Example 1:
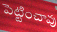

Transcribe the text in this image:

పెట్టించావు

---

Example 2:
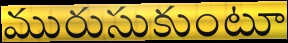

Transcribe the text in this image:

మురుసుకుంటూ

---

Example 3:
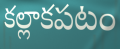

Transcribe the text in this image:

కల్లాకపటం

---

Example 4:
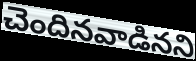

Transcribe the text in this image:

చెందినవాడినని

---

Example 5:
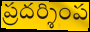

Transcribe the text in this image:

ప్రదర్శింప